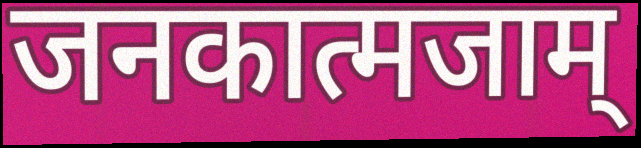
जनकात्मजाम्